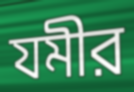
যমীর